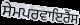
ਸੇਮਪਰਵਾਇਰੈਂਸ